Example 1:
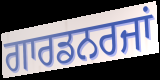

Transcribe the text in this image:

ਗਾਰਡਨਰਜਾਂ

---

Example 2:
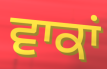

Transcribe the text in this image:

ਵਾਕਾਂ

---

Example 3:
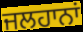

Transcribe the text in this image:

ਜਲਹਾਨਾਂ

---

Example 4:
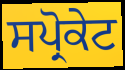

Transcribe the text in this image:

ਸਪ੍ਰੋਕੇਟ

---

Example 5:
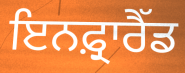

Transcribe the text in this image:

ਇਨਫ਼੍ਰਾਰੈੱਡ